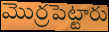
మొర్రపెట్టారు